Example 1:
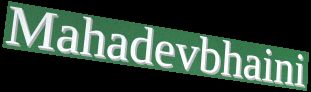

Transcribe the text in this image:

Mahadevbhaini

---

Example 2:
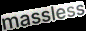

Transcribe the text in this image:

massless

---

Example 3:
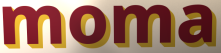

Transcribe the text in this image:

moma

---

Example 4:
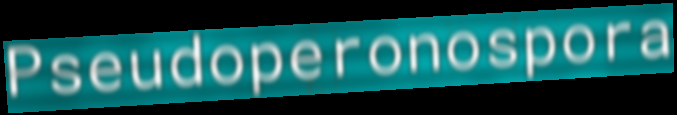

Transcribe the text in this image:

Pseudoperonospora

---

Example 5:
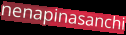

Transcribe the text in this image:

nenapinasanchi